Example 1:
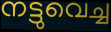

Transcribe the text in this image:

നട്ടുവെച്ച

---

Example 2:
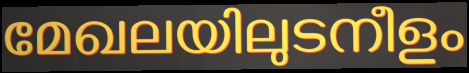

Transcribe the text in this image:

മേഖലയിലുടനീളം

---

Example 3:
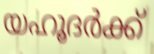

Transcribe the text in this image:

യഹൂദർക്ക്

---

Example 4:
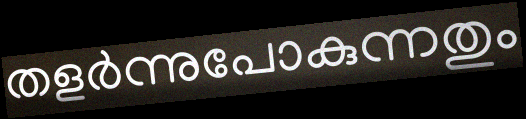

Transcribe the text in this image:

തളർന്നുപോകുന്നതും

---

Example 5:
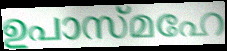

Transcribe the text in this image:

ഉപാസ്മഹേ